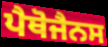
ਪੈਥੋਜੈਨਸ